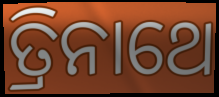
ତ୍ରିନାଥେ